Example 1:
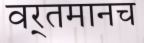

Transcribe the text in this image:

वर्तमानच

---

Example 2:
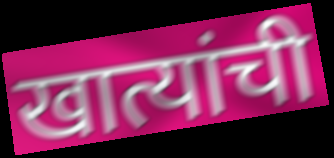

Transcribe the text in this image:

खात्यांची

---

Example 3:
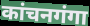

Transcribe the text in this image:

कांचनगंगा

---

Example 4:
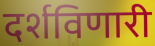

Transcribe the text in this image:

दर्शविणारी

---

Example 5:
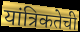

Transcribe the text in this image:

यांत्रिकतेची